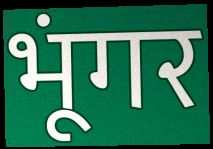
भूंगर